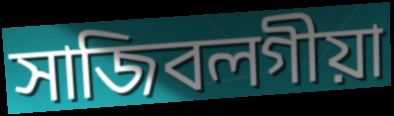
সাজিবলগীয়া